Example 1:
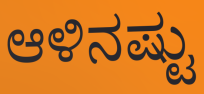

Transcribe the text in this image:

ಆಳಿನಷ್ಟು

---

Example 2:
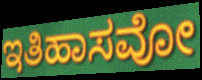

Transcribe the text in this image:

ಇತಿಹಾಸವೋ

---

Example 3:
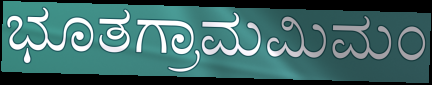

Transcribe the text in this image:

ಭೂತಗ್ರಾಮಮಿಮಂ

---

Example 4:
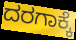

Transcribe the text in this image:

ದರಗಾಕ್ಕೆ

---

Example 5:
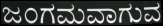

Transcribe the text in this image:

ಜಂಗಮವಾಗುವ